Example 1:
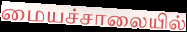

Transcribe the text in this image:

மையச்சாலையில்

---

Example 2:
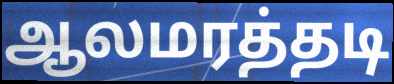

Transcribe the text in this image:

ஆலமரத்தடி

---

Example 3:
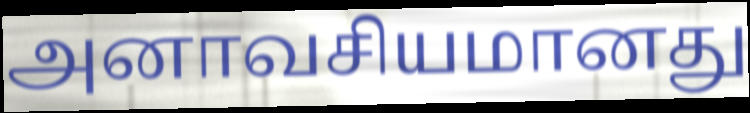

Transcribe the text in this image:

அனாவசியமானது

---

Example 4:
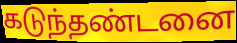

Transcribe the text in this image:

கடுந்தண்டனை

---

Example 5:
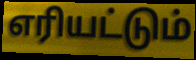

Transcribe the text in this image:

எரியட்டும்